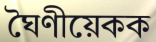
ঘৈণীয়েকক